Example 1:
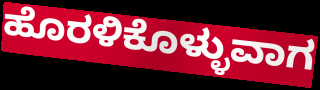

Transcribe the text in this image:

ಹೊರಳಿಕೊಳ್ಳುವಾಗ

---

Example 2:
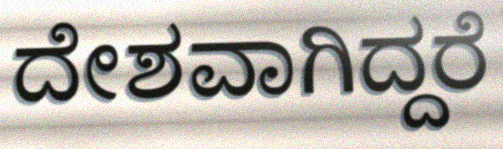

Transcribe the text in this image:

ದೇಶವಾಗಿದ್ದರೆ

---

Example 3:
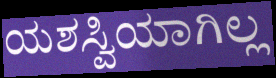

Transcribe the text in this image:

ಯಶಸ್ವಿಯಾಗಿಲ್ಲ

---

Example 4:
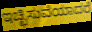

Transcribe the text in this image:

ಇಚ್ಛಿಸುವೆಯಾದರೆ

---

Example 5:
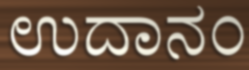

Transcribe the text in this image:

ಉದಾನಂ